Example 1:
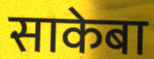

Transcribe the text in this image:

साकेबा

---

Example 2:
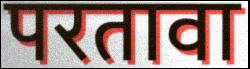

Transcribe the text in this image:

परतावा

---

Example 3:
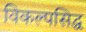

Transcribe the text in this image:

विकल्पसिद्ध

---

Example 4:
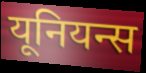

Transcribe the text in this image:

यूनियन्स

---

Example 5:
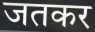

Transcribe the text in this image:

जतकर